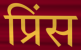
प्रिंस